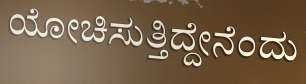
ಯೋಚಿಸುತ್ತಿದ್ದೇನೆಂದು